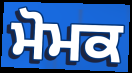
ਮੋਮਕ